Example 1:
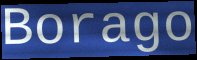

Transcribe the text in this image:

Borago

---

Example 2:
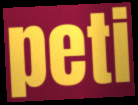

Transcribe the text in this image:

peti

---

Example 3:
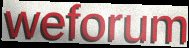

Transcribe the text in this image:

weforum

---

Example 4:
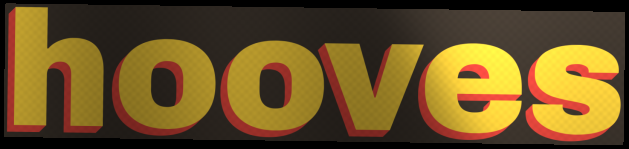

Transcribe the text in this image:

hooves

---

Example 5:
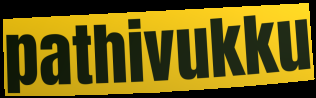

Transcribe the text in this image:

pathivukku